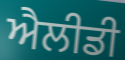
ਐਲੀਡੀ